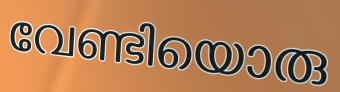
വേണ്ടിയൊരു